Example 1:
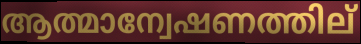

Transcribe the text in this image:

ആത്മാന്വേഷണത്തില്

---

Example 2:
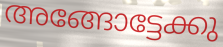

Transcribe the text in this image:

അങ്ങോട്ടേക്കു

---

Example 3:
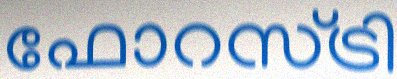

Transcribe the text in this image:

ഫോറസ്ട്രി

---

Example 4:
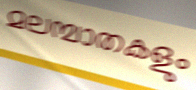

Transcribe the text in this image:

മലമ്പാതകളും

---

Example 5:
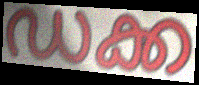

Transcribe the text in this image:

ഡക്ക